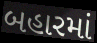
બહારમાં